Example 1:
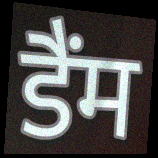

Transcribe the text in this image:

डैंम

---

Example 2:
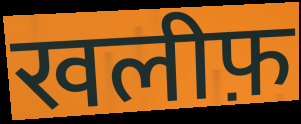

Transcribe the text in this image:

खलीफ़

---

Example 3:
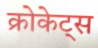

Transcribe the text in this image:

क्रोकेट्स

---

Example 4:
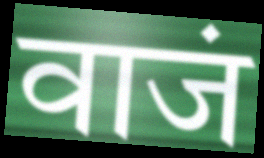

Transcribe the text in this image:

वाजं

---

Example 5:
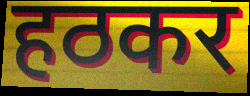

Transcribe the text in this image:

हठकर